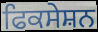
ਫਿਕਸੇਸ਼ਨ